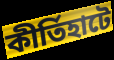
কীর্তিহাটে